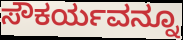
ಸೌಕರ್ಯವನ್ನೂ